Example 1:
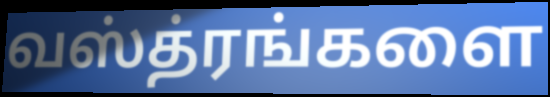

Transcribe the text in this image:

வஸ்த்ரங்களை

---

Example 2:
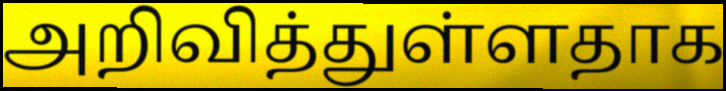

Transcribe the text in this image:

அறிவித்துள்ளதாக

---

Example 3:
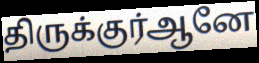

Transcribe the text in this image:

திருக்குர்ஆனே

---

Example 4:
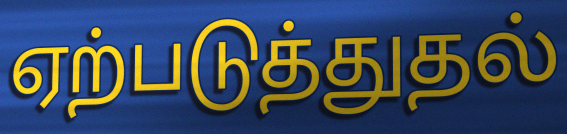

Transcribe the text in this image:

ஏற்படுத்துதல்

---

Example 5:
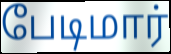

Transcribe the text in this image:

பேடிமார்